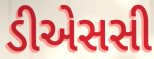
ડીએસસી